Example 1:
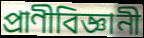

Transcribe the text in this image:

প্রাণীবিজ্ঞানী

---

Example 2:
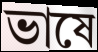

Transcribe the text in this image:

ভাষে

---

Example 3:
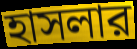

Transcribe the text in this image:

হাসলার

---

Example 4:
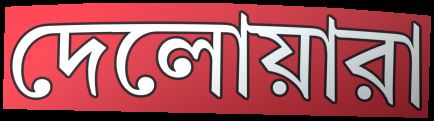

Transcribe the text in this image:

দেলোয়ারা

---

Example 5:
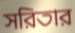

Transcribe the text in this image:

সরিতার